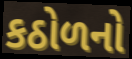
કઠોળનો